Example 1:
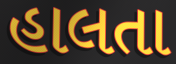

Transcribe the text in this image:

હાલતા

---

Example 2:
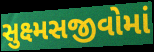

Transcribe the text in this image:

સુક્ષ્મસજીવોમાં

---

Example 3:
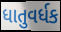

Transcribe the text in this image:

ધાતુવર્ધક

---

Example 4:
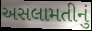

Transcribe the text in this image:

અસલામતીનું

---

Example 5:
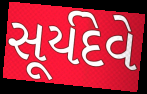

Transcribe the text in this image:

સૂર્યદેવે